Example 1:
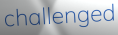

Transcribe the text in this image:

challenged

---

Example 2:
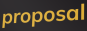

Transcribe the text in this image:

proposal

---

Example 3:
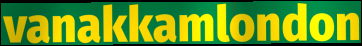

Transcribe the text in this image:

vanakkamlondon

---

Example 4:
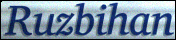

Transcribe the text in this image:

Ruzbihan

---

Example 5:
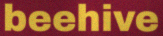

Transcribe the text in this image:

beehive